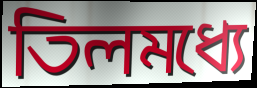
তিলমধ্যে